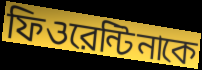
ফিওরেন্টিনাকে